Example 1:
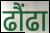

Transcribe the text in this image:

ढौंढा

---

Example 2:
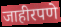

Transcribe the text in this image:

जाहीरपणे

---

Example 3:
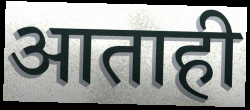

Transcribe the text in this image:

आताही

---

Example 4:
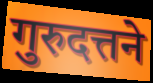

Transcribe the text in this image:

गुरुदत्तने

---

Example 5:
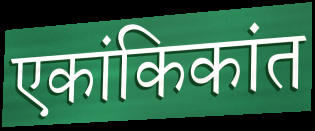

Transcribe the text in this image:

एकांकिकांत